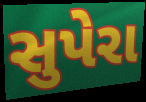
સુપેરા